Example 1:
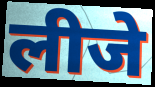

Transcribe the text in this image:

लीजे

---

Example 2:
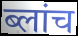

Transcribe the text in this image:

ब्लांच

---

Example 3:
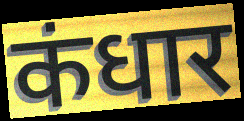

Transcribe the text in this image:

कंधार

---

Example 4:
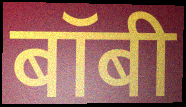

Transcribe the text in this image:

बॉबी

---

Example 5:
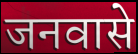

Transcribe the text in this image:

जनवासे